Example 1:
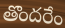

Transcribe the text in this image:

తొందరేం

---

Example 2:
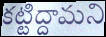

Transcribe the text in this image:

కట్టిద్దామని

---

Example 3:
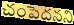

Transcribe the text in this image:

చంపెదనని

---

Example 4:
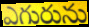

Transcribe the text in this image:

ఎగురును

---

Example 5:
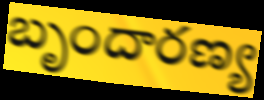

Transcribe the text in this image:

బృందారణ్య